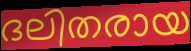
ദലിതരായ